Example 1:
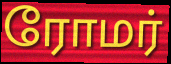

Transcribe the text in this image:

ரோமர்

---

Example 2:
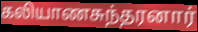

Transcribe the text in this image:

கலியாணசுந்தரனார்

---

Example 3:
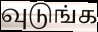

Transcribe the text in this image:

வுடுங்க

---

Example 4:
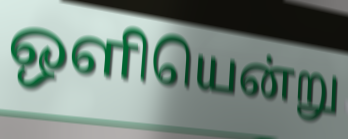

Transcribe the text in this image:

ஒளியென்று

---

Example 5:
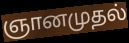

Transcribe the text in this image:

ஞானமுதல்